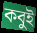
কবুই